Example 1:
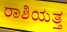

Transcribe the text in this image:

ರಾಶಿಯತ್ತ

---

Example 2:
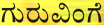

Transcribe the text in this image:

ಗುರುವಿಂಗೆ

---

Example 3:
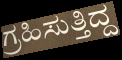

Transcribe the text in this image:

ಗ್ರಹಿಸುತ್ತಿದ್ದ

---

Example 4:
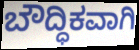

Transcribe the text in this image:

ಬೌದ್ಧಿಕವಾಗಿ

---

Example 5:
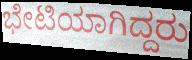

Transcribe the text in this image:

ಭೇಟಿಯಾಗಿದ್ದರು